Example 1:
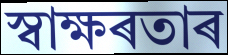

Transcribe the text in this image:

স্বাক্ষৰতাৰ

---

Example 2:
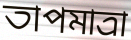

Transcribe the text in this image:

তাপমাত্ৰা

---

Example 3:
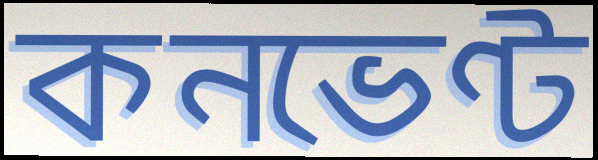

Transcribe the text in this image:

কনভেণ্ট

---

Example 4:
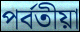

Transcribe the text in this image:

পৰ্বতীয়া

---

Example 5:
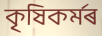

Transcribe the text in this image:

কৃষিকৰ্মৰ